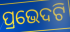
ପ୍ରଭେଦଟି